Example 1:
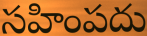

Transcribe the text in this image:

సహింపదు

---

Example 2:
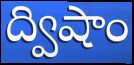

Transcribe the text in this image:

ద్విషాం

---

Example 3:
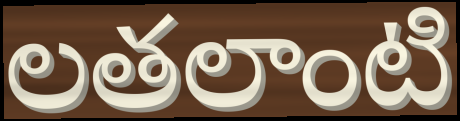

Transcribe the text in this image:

లతలాంటి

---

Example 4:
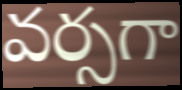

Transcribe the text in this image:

వర్సగా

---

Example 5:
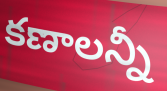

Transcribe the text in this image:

కణాలన్నీ